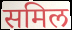
समिल